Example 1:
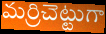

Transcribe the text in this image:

మర్రిచెట్టుగా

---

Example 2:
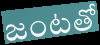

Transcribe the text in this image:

జంటతో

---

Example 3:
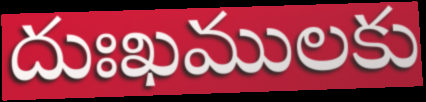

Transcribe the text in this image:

దుఃఖములకు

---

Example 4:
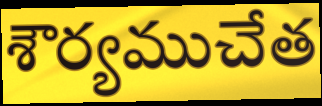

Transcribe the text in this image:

శౌర్యముచేత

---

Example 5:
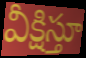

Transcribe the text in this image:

వీక్షిస్తూ